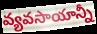
వ్యవసాయాన్నీ